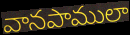
వానపాములా